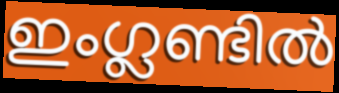
ഇംഗ്ലണ്ടിൽ